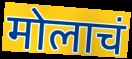
मोलाचं